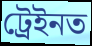
ট্ৰেইনত